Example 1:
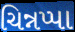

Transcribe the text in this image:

ચિન્નપ્પા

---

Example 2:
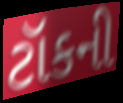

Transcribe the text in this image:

ટૉકની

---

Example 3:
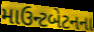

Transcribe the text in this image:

માઉન્ટબેટનના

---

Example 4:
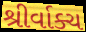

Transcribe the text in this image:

શ્રીર્વાક્ચ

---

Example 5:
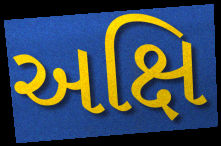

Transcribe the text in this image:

અક્ષિ